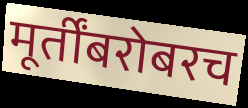
मूर्तींबरोबरच